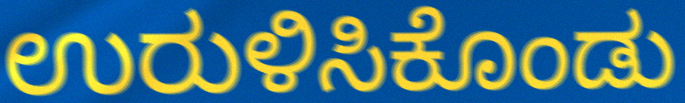
ಉರುಳಿಸಿಕೊಂಡು